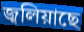
জ্বলিয়াছে